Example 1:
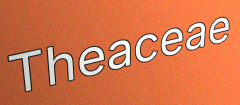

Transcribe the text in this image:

Theaceae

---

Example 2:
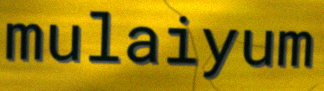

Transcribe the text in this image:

mulaiyum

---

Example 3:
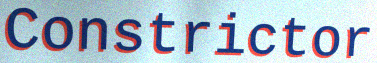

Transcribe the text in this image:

Constrictor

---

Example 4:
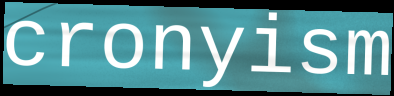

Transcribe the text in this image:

cronyism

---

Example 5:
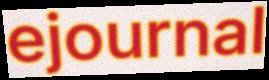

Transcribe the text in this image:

ejournal